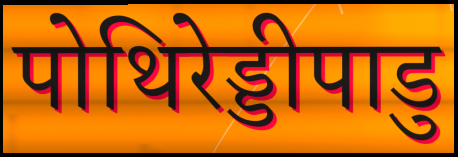
पोथिरेड्डीपाडु